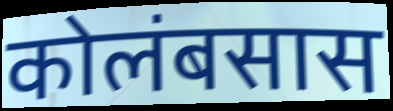
कोलंबसास